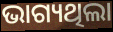
ଭାଗ୍ୟଥିଲା